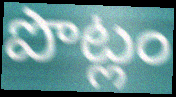
పొట్లం